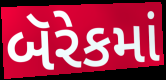
બૅરેકમાં